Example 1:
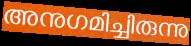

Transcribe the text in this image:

അനുഗമിച്ചിരുന്നു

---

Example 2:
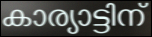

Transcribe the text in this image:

കാര്യാട്ടിന്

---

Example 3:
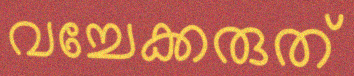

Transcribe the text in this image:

വച്ചേക്കരുത്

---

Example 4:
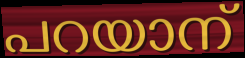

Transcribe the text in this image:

പറയാന്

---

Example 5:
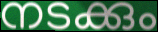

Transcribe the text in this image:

നടക്കും